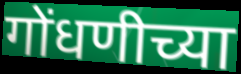
गोंधणीच्या